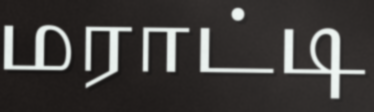
மராட்டி